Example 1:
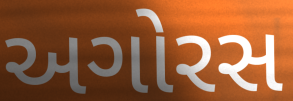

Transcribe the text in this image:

અગોરસ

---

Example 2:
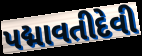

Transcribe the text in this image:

પદ્માવતીદેવી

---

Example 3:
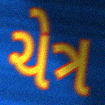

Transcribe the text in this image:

ચેત્ર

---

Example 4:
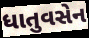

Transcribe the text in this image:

ધાતુવસેન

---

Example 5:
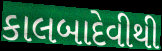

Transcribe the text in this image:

કાલબાદેવીથી